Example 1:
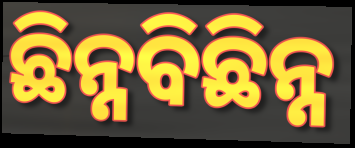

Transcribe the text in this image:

ଛିନ୍ନବିଛିନ୍ନ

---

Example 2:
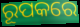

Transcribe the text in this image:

ରୂପକରେ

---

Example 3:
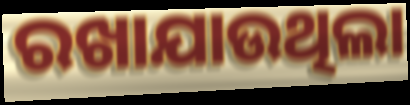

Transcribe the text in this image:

ରଖାଯାଉଥିଲା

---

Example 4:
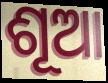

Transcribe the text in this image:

ଶୂଆ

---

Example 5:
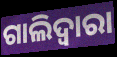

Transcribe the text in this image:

ଗାଲିଦ୍ଵାରା